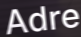
Adre